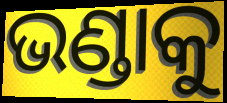
ଭଣ୍ଡାକୁ